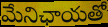
మేనిఛాయతో